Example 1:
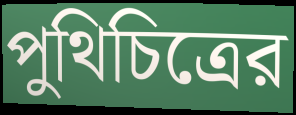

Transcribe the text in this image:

পুথিচিত্রের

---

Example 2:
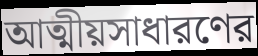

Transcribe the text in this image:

আত্মীয়সাধারণের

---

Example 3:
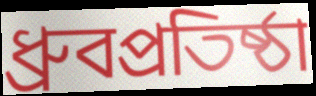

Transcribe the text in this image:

ধ্রুবপ্রতিষ্ঠা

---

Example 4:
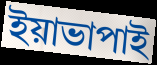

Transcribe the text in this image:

ইয়াভাপাই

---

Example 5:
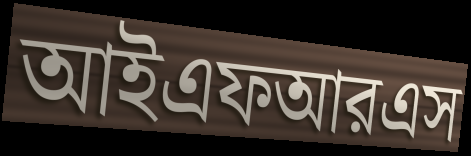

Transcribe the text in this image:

আইএফআরএস